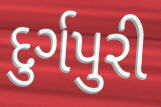
દુર્ગપુરી